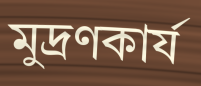
মুদ্রণকার্য